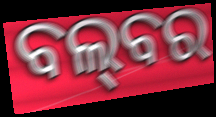
ବଲ୍‌ବର